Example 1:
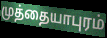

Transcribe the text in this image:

முத்தையாபுரம்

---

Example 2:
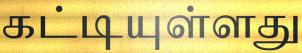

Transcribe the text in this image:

கட்டியுள்ளது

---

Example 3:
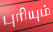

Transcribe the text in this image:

புரியும்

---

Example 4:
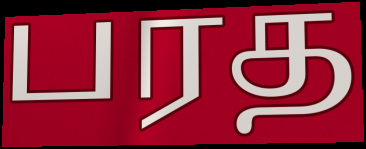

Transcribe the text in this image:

பரத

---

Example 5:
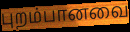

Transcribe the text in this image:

புறம்பானவை